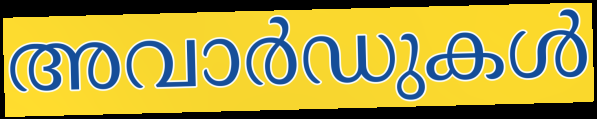
അവാർഡുകൾ